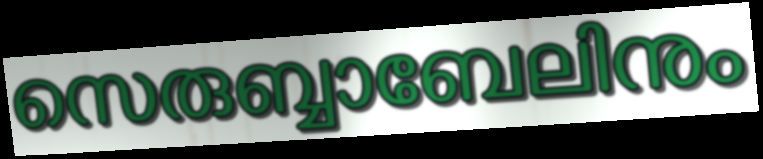
സെരുബ്ബാബേലിനും